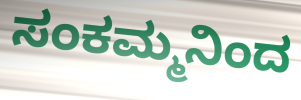
ಸಂಕಮ್ಮನಿಂದ